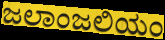
ಜಲಾಂಜಲಿಯಂ